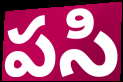
పసి